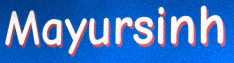
Mayursinh